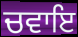
ਚਵਾਇ